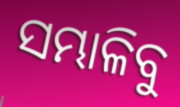
ସମ୍ଭାଳିବୁ